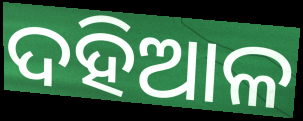
ଦହିଆଳ